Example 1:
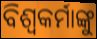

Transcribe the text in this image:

ବିଶ୍ଵକର୍ମାଙ୍କୁ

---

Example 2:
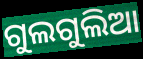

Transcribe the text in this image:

ଗୁଲଗୁଲିଆ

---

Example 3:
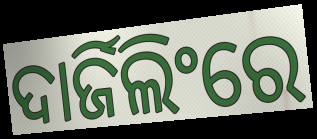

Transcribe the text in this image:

ଦାର୍ଜିଲିଂରେ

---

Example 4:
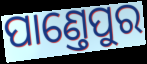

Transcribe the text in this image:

ପାଣ୍ତେପୁର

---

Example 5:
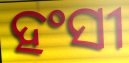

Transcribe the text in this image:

ହଂସୀ